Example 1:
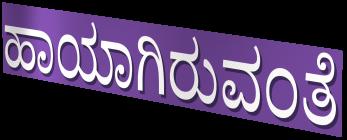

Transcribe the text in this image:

ಹಾಯಾಗಿರುವಂತೆ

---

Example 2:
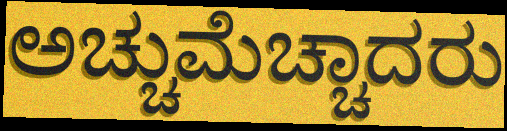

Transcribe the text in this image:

ಅಚ್ಚುಮೆಚ್ಚಾದರು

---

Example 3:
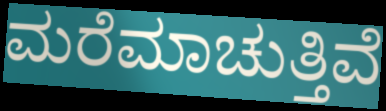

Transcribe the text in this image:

ಮರೆಮಾಚುತ್ತಿವೆ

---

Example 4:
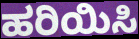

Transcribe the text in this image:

ಹರಿಯಿಸಿ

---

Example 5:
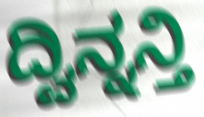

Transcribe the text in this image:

ದ್ವಿನ್ನನ್ತಿ